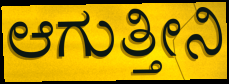
ಆಗುತ್ತೀನಿ